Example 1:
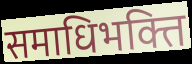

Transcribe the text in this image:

समाधिभक्ति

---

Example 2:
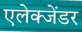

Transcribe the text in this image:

एलेक्‍जेंडर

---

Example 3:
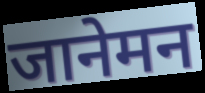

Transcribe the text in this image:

जानेमन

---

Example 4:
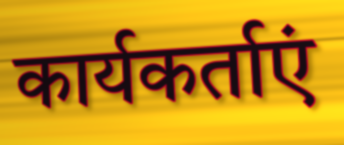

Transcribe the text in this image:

कार्यकर्ताएं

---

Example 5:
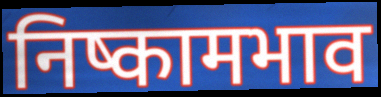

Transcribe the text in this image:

निष्कामभाव